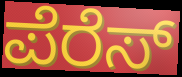
ಪೆರೆಸ್